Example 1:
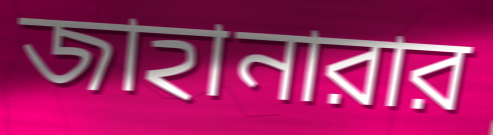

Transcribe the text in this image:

জাহানারার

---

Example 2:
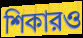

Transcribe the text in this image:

শিকারও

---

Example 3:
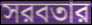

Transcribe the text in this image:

সরবতার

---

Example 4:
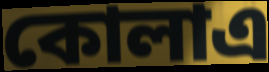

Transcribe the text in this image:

কোলাএ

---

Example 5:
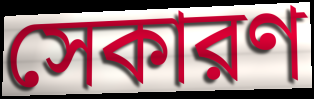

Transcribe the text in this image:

সেকারণ